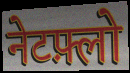
नेटफ़्लो